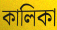
কালিকা